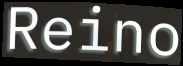
Reino